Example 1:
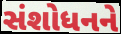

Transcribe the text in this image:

સંશોધનને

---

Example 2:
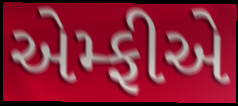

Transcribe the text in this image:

એમ્ફીએ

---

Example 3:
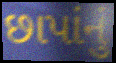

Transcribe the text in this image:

છાપાંનું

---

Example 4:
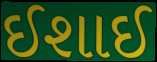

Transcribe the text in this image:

ઈશાઈ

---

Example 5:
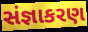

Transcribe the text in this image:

સંજ્ઞાકરણ